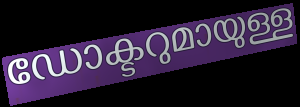
ഡോക്ടറുമായുള്ള